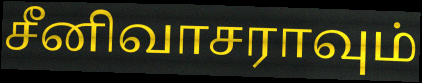
சீனிவாசராவும்